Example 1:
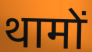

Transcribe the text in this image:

थामों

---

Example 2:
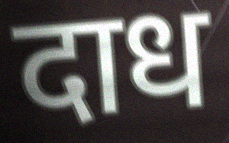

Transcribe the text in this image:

दाध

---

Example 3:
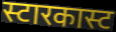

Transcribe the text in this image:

स्टारकास्ट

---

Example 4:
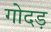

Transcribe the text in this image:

गोदड़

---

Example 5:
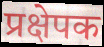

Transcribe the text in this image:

प्रक्षेपक